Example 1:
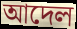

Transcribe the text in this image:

আদেল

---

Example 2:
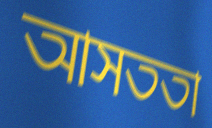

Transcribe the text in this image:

আসততা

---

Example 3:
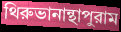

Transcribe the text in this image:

থিরুভানান্থাপুরাম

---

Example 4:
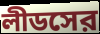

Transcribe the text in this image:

লীডসের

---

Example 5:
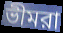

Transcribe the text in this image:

ভীমরা